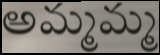
అమ్మమ్మ